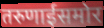
तरुणाईसमोर